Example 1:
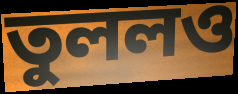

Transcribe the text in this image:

তুললও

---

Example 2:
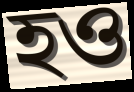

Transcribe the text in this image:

হও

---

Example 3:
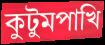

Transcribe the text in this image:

কুটুমপাখি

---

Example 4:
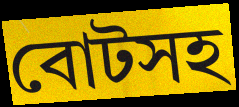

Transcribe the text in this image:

বোটসহ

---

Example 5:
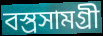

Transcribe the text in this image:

বস্ত্রসামগ্রী